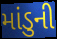
માંડુની